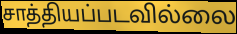
சாத்தியப்படவில்லை